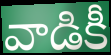
వాడికీ